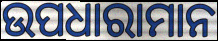
ଉପଧାରାମାନ